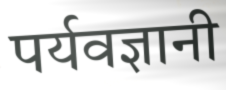
पर्यवज्ञानी